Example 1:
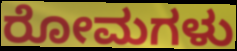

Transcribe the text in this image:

ರೋಮಗಳು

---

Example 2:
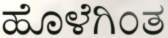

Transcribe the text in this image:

ಹೊಳೆಗಿಂತ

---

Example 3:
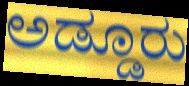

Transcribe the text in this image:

ಅಡ್ಡೂರು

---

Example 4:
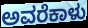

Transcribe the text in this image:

ಅವರೆಕಾಳು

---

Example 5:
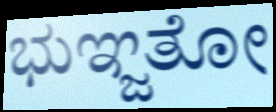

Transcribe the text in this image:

ಭುಞ್ಜತೋ